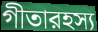
গীতারহস্য